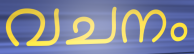
വചനം